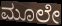
ಮೂಲೇ